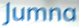
Jumna